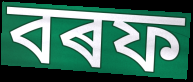
বৰফ